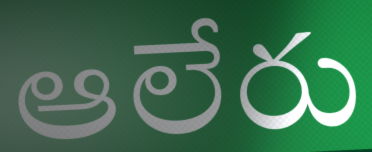
ఆలేరు